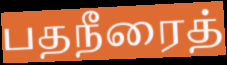
பதநீரைத்